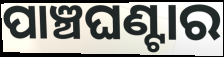
ପାଞ୍ଚଘଣ୍ଟାର